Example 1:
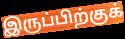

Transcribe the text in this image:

இருப்பிற்குக்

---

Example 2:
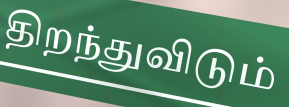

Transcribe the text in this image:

திறந்துவிடும்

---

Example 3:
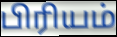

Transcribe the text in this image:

பிரியம்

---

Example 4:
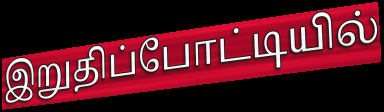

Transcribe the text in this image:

இறுதிப்போட்டியில்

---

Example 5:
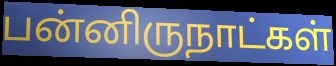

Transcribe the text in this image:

பன்னிருநாட்கள்